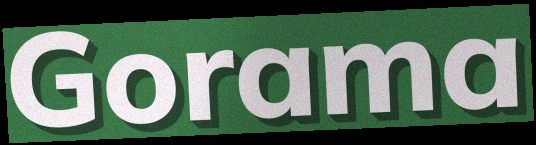
Gorama